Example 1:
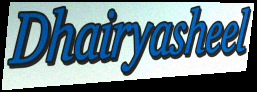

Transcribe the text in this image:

Dhairyasheel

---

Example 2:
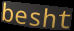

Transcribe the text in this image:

besht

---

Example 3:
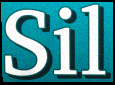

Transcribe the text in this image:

Sil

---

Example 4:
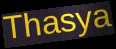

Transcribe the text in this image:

Thasya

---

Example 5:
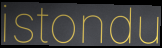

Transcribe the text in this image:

istondu